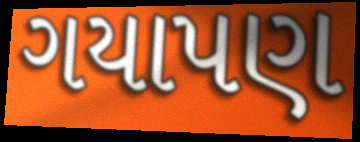
ગયાપણ